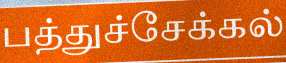
பத்துச்சேக்கல்